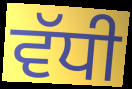
ਵੱਧੀ